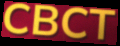
CBCT